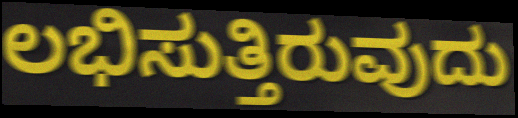
ಲಭಿಸುತ್ತಿರುವುದು